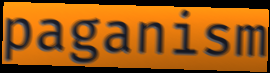
paganism